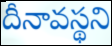
దీనావస్థని